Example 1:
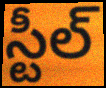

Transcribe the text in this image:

స్టీల్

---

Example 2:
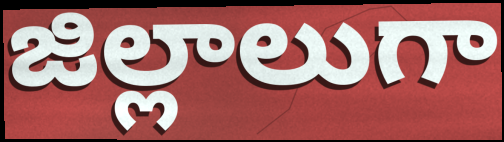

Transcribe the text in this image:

జిల్లాలుగా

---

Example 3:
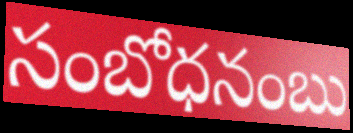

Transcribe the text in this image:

సంబోధనంబు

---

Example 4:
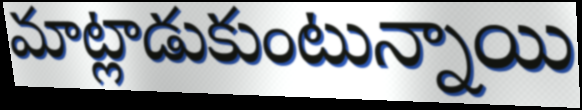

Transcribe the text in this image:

మాట్లాడుకుంటున్నాయి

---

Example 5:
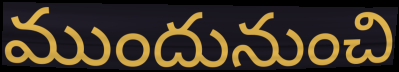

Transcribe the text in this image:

ముందునుంచి